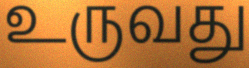
உருவது